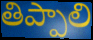
తిప్పాలి